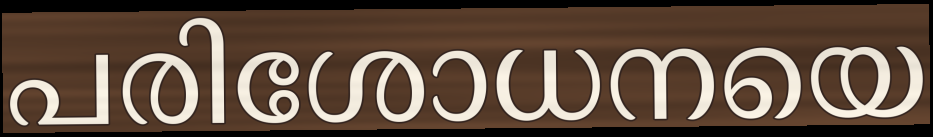
പരിശോധനയെ